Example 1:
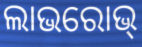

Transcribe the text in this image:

ଲାଭରୋଭ୍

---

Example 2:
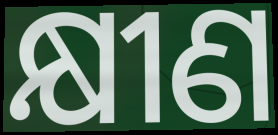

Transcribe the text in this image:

କ୍ଷୀଣ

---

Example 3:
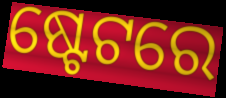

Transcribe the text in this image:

ଷ୍ଟେଟରେ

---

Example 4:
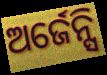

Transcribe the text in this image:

ଅର୍ଜେନ୍ସି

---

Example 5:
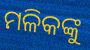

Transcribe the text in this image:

ମଳିକଙ୍କୁ